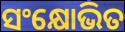
ସଂକ୍ଷୋଭିତ